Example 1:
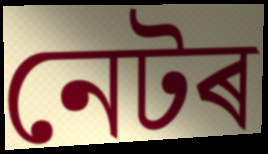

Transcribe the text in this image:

নেটৰ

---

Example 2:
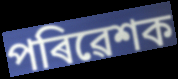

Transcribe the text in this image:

পৰিৱেশক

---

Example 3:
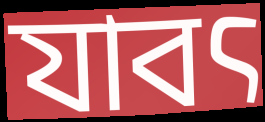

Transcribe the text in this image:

যাবৎ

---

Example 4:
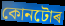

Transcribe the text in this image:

কোনটোৰ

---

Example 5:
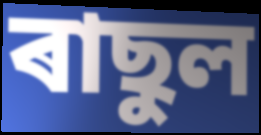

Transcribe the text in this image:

ৰাছুল